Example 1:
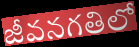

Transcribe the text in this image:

జీవనగతిలో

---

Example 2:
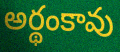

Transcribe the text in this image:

అర్థంకావు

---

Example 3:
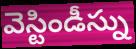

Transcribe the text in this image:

వెస్టిండీస్ను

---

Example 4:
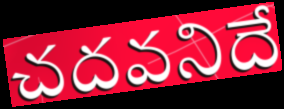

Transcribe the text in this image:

చదవనిదే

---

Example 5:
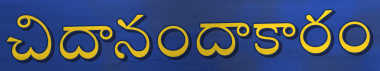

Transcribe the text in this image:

చిదానందాకారం